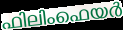
ഫിലിംഫെയർ